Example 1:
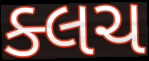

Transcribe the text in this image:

ક્લચ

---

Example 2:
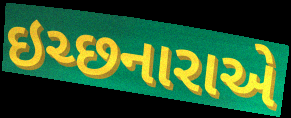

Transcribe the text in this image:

ઇચ્છનારાએ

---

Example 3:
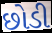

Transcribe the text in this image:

છોડી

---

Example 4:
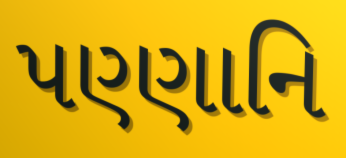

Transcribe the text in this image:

પણ્ણાનિ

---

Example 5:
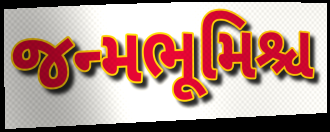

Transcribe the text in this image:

જન્મભૂમિશ્ચ